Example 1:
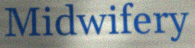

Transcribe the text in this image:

Midwifery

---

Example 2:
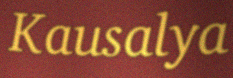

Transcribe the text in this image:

Kausalya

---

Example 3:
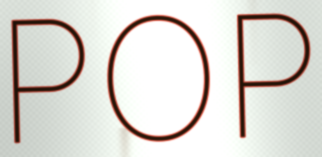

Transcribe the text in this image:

POP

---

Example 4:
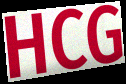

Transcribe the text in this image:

HCG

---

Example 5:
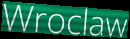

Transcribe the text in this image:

Wroclaw